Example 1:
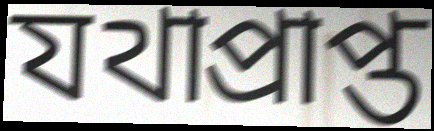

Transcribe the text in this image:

যথাপ্ৰাপ্ত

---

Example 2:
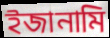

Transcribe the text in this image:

ইজানামি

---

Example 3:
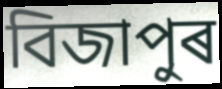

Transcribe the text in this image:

বিজাপুৰ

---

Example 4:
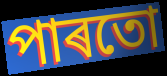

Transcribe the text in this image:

পাৰতো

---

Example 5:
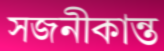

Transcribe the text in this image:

সজনীকান্ত